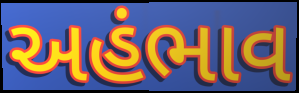
અહંભાવ